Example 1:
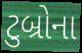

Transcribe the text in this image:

ટુબ્રોના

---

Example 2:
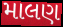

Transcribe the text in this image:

માલણ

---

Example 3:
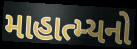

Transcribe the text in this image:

માહાત્મ્યનો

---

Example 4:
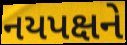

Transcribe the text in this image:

નયપક્ષને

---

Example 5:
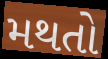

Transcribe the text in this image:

મથતો